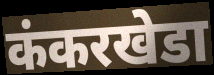
कंकरखेडा